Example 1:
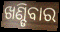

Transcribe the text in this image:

ଖଣ୍ଡିବାର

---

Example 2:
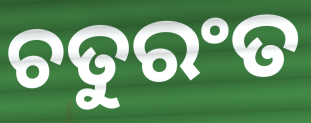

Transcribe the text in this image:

ଚତୁରଂତ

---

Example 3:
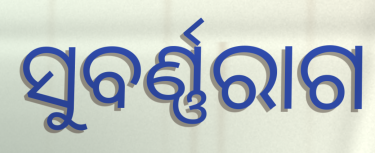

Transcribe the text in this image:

ସୁବର୍ଣ୍ଣରାଗ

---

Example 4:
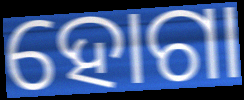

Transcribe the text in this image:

ହୋଗା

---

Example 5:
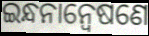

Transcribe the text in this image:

ଇନ୍ଧନାନ୍ଵେଷଣେ